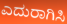
ಎದುರಾಗಿಸಿ